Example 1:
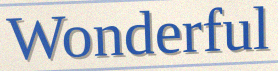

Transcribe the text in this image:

Wonderful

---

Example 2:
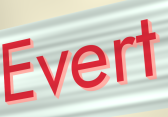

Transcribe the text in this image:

Evert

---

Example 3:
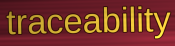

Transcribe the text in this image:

traceability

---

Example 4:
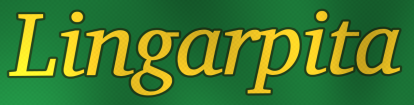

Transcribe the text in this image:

Lingarpita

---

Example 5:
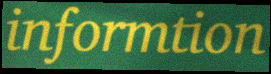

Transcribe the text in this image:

informtion